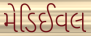
મેડિઈવલ